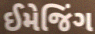
ઈમેજિંગ